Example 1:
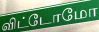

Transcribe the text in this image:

விட்டோமோ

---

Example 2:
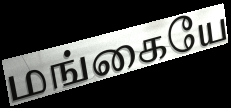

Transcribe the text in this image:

மங்கையே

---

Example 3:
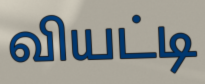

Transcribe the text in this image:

வியட்டி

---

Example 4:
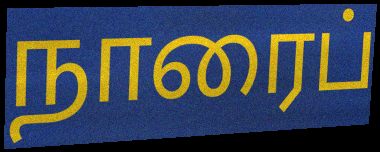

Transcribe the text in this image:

நாரைப்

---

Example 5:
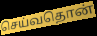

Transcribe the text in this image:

செய்வதொன்